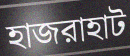
হাজরাহাট